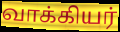
வாக்கியர்